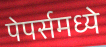
पेपर्समध्ये